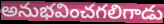
అనుభవించగలిగాడు